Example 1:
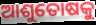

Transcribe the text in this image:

ଆଶୁତୋଷକୁ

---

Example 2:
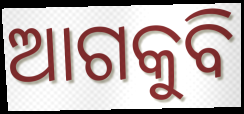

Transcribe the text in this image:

ଆଗକୁବି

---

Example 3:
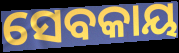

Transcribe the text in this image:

ସେବକାୟ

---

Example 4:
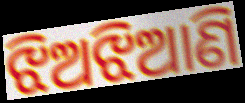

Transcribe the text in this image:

ଝିଅଝିଆଣି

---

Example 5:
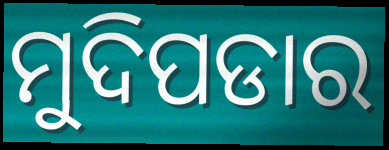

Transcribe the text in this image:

ମୁଦିପଡାର